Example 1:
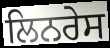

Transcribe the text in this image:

ਲਿਨਰੇਸ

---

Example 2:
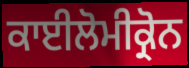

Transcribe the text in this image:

ਕਾਈਲੋਮੀਕ੍ਰੋਨ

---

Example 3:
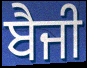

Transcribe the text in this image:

ਬੈਜੀ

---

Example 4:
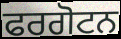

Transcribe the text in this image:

ਫਰਗੋਟਨ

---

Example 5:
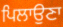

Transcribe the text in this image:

ਪਿਲਾਉਣਾ